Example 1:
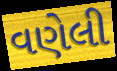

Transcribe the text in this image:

વણેલી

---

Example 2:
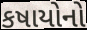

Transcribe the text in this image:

કષાયોનો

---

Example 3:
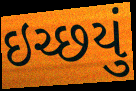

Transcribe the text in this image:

ઇચ્છયું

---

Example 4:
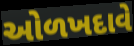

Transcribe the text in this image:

ઓળખદાવે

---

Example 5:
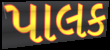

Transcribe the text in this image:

પાલક